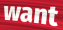
want